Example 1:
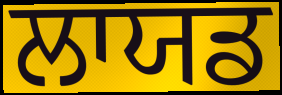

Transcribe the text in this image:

ਲਾਯਡ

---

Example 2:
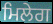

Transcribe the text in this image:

ਮਿਲੇਗ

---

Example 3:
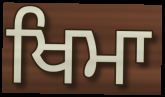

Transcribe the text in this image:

ਖਿਮਾ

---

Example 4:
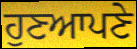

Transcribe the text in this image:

ਹੁਣਆਪਣੇ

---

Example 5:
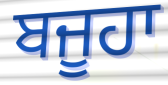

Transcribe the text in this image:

ਬਜੂਹਾ